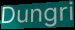
Dungri